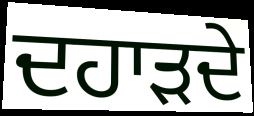
ਦਹਾੜਦੇ